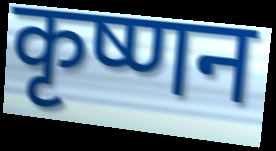
कृष्णन